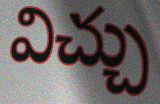
విచ్చు